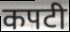
कपटी